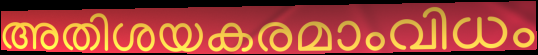
അതിശയകരമാംവിധം